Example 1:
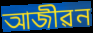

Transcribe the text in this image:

আজীৱন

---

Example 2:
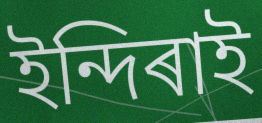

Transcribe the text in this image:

ইন্দিৰাই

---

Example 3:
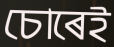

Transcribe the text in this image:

চোৰেই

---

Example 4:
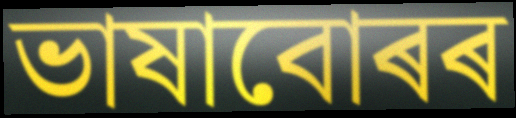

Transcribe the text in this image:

ভাষাবোৰৰ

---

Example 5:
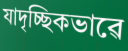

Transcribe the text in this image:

যাদৃচ্ছিকভাৱে